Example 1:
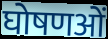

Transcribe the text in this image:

घोषणओं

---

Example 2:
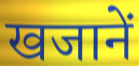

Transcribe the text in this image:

खजानें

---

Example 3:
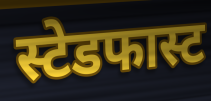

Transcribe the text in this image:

स्टेडफास्ट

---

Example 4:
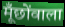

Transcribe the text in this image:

मूँछोंवाला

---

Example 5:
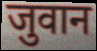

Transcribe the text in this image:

जुवान